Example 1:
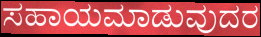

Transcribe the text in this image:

ಸಹಾಯಮಾಡುವುದರ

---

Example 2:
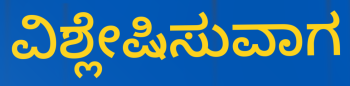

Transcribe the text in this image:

ವಿಶ್ಲೇಷಿಸುವಾಗ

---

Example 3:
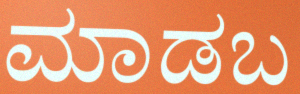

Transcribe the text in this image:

ಮಾಡಬ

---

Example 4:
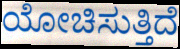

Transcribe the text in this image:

ಯೋಚಿಸುತ್ತಿದೆ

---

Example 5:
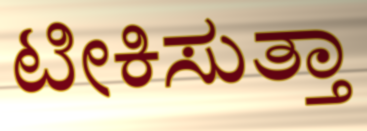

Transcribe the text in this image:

ಟೀಕಿಸುತ್ತಾ